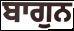
ਬਾਗੁਨ